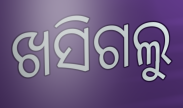
ଖସିଗଲୁ